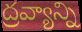
ద్రవ్యాన్ని